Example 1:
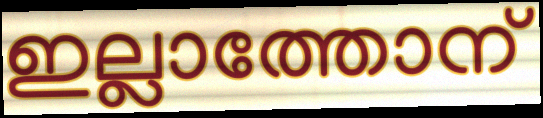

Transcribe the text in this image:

ഇല്ലാത്തോന്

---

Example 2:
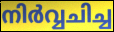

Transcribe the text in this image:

നിർവ്വചിച്ച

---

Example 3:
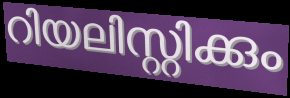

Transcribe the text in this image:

റിയലിസ്റ്റിക്കും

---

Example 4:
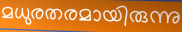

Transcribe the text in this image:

മധുരതരമായിരുന്നു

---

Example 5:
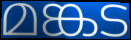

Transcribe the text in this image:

മങ്കട